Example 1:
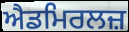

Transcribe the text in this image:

ਐਡਮਿਰਲਜ਼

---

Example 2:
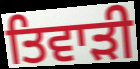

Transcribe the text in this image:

ਤਿਵਾੜੀ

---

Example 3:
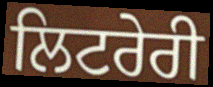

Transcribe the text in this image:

ਲਿਟਰੇਰੀ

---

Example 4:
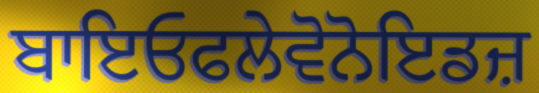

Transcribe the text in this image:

ਬਾਇਓਫਲੇਵੋਨੋਇਡਜ਼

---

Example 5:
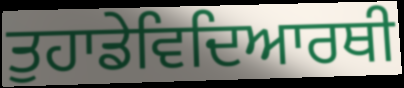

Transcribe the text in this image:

ਤੁਹਾਡੇਵਿਦਿਆਰਥੀ